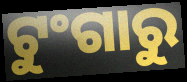
ଟୁଂଗାରୁ